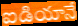
ఐడియానే